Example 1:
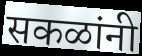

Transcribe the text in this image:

सकळांनी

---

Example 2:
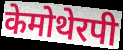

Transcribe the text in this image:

केमोथेरपी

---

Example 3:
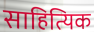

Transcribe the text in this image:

साहित्यिक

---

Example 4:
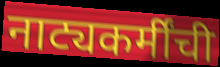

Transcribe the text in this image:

नाट्यकर्मींची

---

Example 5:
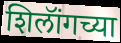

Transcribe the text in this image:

शिलॉंगच्या